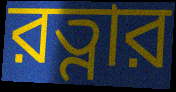
রত্নার